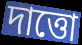
দাত্তো